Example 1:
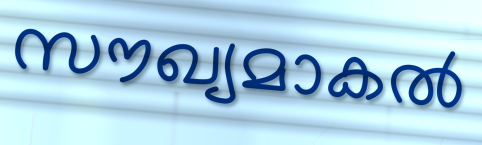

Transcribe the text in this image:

സൗഖ്യമാകൽ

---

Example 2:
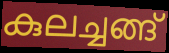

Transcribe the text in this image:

കുലച്ചങ്ങ്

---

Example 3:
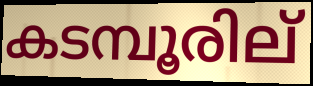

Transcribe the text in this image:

കടമ്പൂരില്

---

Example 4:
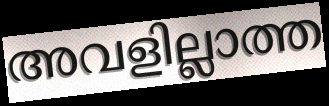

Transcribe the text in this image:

അവളില്ലാത്ത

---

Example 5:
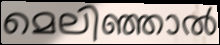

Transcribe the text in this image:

മെലിഞ്ഞാൽ